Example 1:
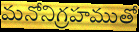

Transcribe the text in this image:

మనోనిగ్రహముతో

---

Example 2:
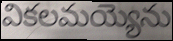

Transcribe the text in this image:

వికలమయ్యెను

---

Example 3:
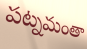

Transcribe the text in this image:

పట్నమంతా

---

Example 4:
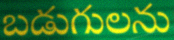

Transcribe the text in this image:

బడుగులను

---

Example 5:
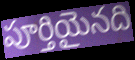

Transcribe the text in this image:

పూర్తియైనది